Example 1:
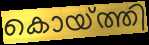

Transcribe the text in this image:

കൊയ്‌ത്തി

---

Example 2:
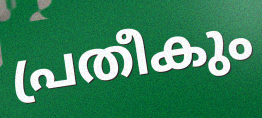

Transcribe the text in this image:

പ്രതീകും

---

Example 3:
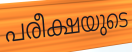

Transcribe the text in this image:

പരീക്ഷയുടെ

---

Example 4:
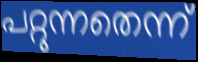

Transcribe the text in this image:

പറ്റുന്നതെന്ന്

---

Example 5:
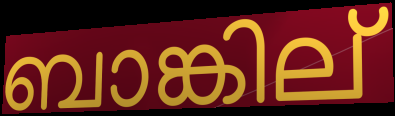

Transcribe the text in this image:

ബാങ്കില്